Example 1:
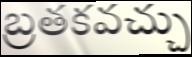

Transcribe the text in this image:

బ్రతకవచ్చు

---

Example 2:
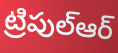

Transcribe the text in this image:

ట్రిపుల్ఆర్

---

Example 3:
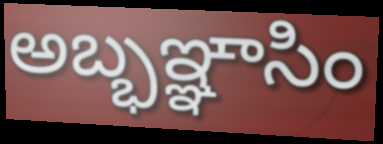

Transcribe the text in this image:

అబ్భఞ్ఞాసిం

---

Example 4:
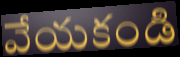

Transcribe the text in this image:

వేయకండి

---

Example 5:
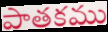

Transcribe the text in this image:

పాతకము